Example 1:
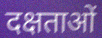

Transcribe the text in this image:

दक्षताओं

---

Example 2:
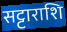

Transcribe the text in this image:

सट्टाराशि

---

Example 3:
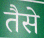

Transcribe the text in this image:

तैसे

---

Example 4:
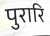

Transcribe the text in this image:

पुरारि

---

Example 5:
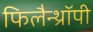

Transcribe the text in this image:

फिलैन्थ्रॉपी